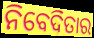
ନିବେଦିତାର